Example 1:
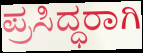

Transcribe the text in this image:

ಪ್ರಸಿದ್ಧರಾಗಿ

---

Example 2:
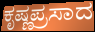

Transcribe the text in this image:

ಕೃಷ್ಣಪ್ರಸಾದ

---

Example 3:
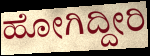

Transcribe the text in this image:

ಹೋಗಿದ್ದೀರಿ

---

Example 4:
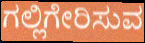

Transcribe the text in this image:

ಗಲ್ಲಿಗೇರಿಸುವ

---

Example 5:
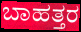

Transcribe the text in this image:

ಬಾಹತ್ತರ